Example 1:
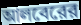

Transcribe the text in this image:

আলবেরের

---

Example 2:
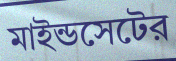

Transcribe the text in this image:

মাইন্ডসেটের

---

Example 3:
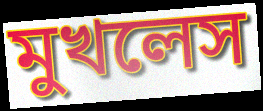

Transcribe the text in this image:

মুখলেস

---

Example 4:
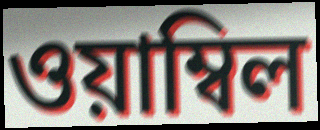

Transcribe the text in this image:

ওয়াম্বিল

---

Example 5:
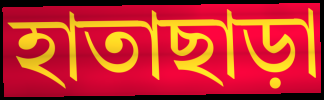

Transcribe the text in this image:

হাতাছাড়া